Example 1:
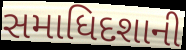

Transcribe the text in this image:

સમાધિદશાની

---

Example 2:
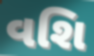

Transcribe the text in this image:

વશિ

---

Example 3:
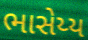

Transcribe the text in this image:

ભાસેય્ય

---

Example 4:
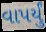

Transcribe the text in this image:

વાપર્યું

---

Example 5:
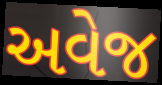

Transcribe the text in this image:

અવેજ